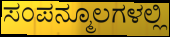
ಸಂಪನ್ಮೂಲಗಳಲ್ಲಿ